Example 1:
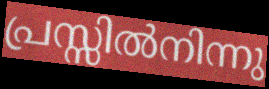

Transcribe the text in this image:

പ്രസ്സിൽനിന്നു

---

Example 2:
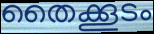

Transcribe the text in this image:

തൈക്കൂടം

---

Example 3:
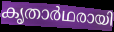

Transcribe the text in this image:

കൃതാർഥരായി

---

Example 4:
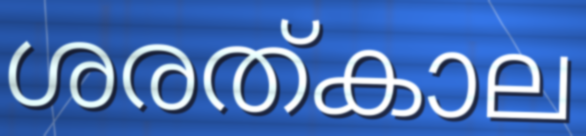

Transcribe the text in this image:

ശരത്കാല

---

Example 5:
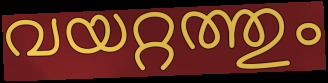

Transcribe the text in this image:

വയറ്റത്തും